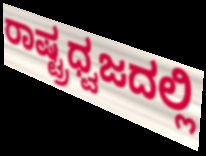
ರಾಷ್ಟ್ರಧ್ವಜದಲ್ಲಿ